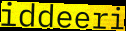
iddeeri